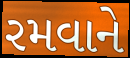
રમવાને